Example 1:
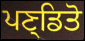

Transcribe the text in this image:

ਪਣ੍ਡਿਤੋ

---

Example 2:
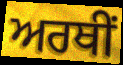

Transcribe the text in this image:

ਅਰਥੀਂ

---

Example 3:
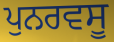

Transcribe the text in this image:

ਪੁਨਰਵਸੂ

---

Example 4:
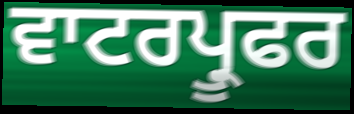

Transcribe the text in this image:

ਵਾਟਰਪ੍ਰੂਫਰ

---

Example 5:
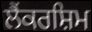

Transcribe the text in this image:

ਲੈਂਕਰਸ਼ਿਮ